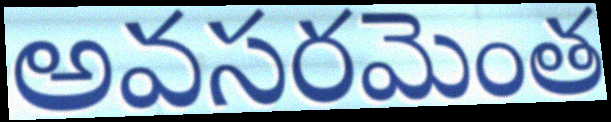
అవసరమెంత